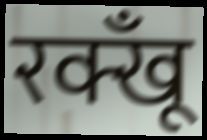
रक्खूँ